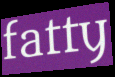
fatty